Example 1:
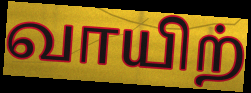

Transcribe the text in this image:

வாயிற்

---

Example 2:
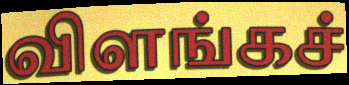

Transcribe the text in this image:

விளங்கச்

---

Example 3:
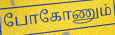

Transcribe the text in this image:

போகோணும்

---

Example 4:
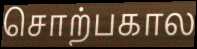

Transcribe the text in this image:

சொற்பகால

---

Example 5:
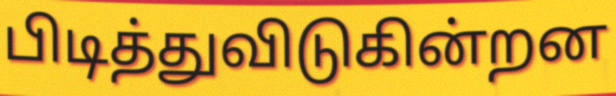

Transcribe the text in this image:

பிடித்துவிடுகின்றன